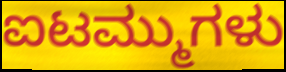
ಐಟಮ್ಮುಗಳು